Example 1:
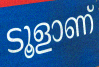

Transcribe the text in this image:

ടൂളാണ്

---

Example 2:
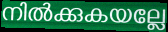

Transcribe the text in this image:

നിൽക്കുകയല്ലേ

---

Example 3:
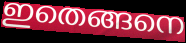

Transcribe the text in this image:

ഇതെങ്ങനെ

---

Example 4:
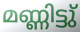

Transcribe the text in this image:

മണ്ണിട്ടു്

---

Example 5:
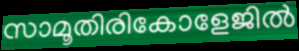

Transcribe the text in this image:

സാമൂതിരികോളേജിൽ